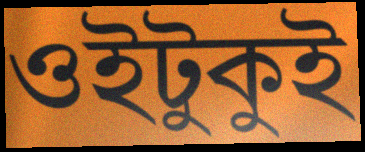
ওইটুকুই